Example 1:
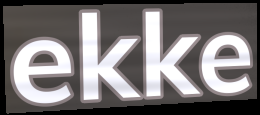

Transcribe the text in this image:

ekke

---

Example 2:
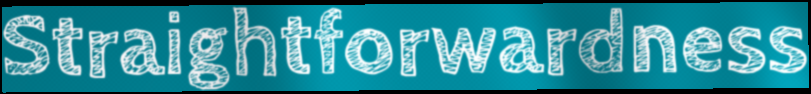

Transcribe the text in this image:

Straightforwardness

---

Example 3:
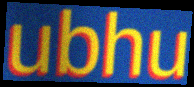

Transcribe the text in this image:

ubhu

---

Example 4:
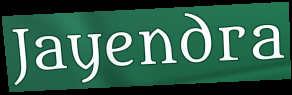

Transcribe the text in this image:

Jayendra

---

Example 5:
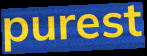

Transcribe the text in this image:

purest